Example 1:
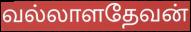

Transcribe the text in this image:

வல்லாளதேவன்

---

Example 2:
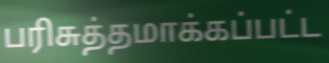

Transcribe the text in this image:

பரிசுத்தமாக்கப்பட்ட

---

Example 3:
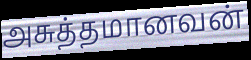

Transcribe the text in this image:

அசுத்தமானவன்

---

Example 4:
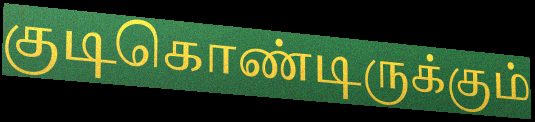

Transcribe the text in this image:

குடிகொண்டிருக்கும்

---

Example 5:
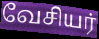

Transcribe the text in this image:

வேசியர்